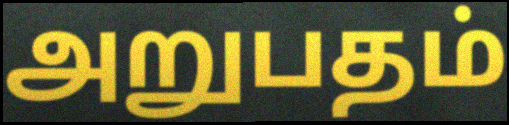
அறுபதம்